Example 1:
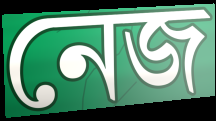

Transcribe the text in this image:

নেজ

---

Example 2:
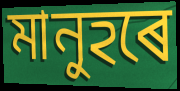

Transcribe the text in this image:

মানুহৰে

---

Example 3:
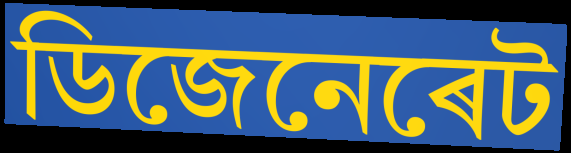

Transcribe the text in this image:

ডিজেনেৰেট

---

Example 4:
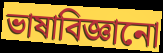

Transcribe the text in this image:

ভাষাবিজ্ঞানো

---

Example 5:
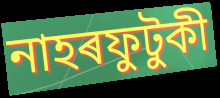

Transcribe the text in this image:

নাহৰফুটুকী